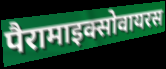
पैरामाइक्सोवायरस